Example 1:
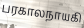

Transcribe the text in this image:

பரகாலநாயகி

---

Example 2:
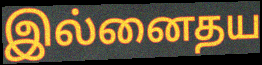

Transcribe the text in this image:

இல்னைதய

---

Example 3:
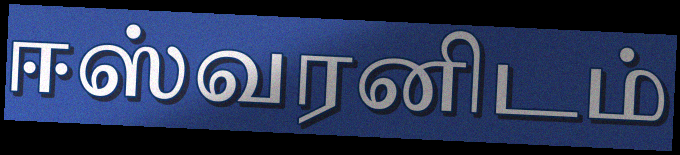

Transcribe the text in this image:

ஈஸ்வரனிடம்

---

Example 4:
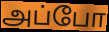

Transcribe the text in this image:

அப்போ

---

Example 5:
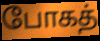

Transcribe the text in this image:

போகத்